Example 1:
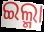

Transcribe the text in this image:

ଇଲ୍ମା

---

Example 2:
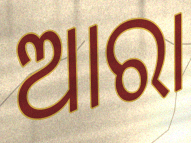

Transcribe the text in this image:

ଆରା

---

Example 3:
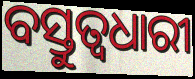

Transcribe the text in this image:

ବସ୍ତୁତ୍ୱଧାରୀ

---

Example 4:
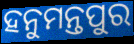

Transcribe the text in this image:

ହନୁମନ୍ତପୁର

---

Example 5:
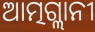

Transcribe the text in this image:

ଆତ୍ମଗ୍ଲାନୀ